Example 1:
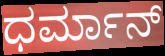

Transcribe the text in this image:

ಧರ್ಮಾನ್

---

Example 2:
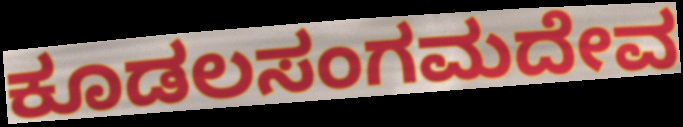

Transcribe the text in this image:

ಕೂಡಲಸಂಗಮದೇವ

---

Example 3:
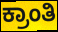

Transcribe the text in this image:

ಕ್ರಾಂತಿ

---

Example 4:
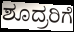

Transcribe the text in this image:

ಶೂದ್ರರಿಗೆ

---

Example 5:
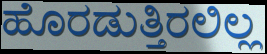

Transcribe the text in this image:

ಹೊರಡುತ್ತಿರಲಿಲ್ಲ